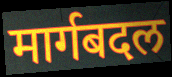
मार्गबदल